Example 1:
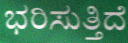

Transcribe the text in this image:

ಭರಿಸುತ್ತಿದೆ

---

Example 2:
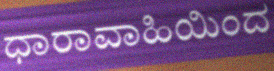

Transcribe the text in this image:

ಧಾರಾವಾಹಿಯಿಂದ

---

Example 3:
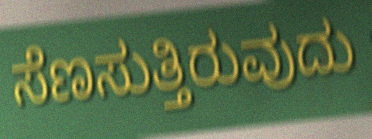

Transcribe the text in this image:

ಸೆಣಸುತ್ತಿರುವುದು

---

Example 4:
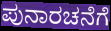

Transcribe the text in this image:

ಪುನಾರಚನೆಗೆ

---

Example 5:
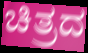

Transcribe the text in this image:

ಚಿತ್ರದ